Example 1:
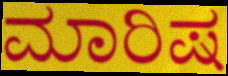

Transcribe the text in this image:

ಮಾರಿಷ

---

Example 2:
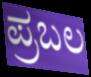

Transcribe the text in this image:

ಪ್ರಬಲ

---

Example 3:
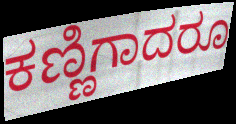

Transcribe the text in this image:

ಕಣ್ಣಿಗಾದರೂ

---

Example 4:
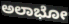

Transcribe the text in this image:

ಅಲಾಭೋ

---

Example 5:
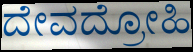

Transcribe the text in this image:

ದೇವದ್ರೋಹಿ